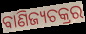
ବାଣିଜ୍ୟଚକ୍ରର